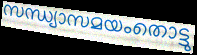
സന്ധ്യാസമയംതൊട്ടു